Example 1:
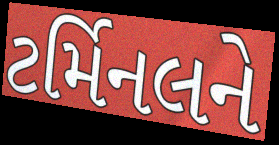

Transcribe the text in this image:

ટર્મિનલને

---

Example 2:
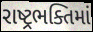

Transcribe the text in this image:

રાષ્ટ્રભક્તિમાં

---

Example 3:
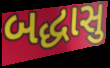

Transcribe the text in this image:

બદ્ધાસુ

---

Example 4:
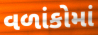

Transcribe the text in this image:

વળાંકોમાં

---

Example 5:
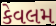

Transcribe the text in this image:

કેવલમ